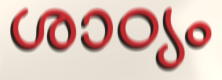
ശാഠ്യം